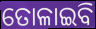
ତୋଳାଇବି